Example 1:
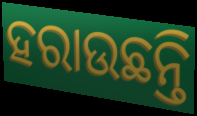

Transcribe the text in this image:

ହରାଉଛନ୍ତି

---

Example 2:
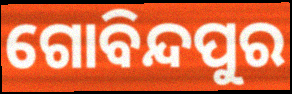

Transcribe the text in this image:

ଗୋବିନ୍ଦପୁର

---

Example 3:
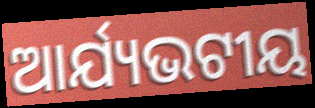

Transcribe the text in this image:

ଆର୍ଯ୍ୟଭଟୀୟ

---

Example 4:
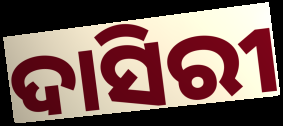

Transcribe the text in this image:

ଦାସିରୀ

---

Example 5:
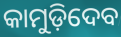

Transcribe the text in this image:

କାମୁଡ଼ିଦେବ